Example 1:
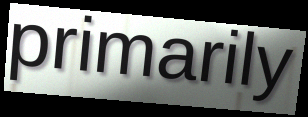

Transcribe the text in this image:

primarily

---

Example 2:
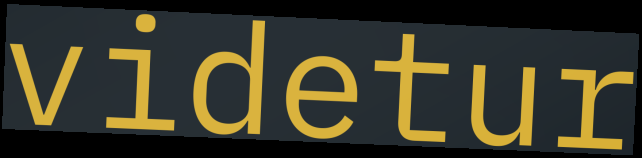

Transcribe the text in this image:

videtur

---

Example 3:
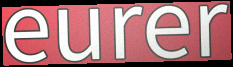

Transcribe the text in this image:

eurer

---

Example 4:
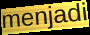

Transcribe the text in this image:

menjadi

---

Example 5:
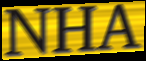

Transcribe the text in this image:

NHA